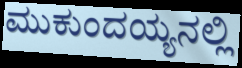
ಮುಕುಂದಯ್ಯನಲ್ಲಿ